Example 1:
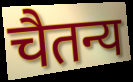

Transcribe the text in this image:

चैतन्य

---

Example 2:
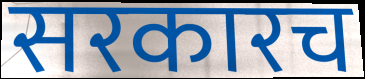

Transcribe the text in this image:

सरकारच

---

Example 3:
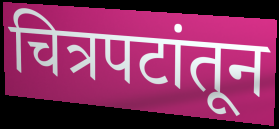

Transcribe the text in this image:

चित्रपटांतून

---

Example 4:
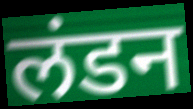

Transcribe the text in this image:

लंडन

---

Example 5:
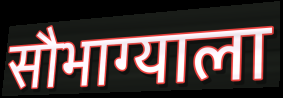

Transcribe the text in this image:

सौभाग्याला